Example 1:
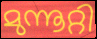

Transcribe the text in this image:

മുന്നൂറ്റി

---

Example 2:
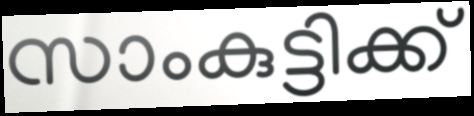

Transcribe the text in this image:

സാംകുട്ടിക്ക്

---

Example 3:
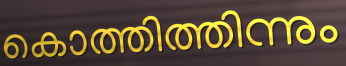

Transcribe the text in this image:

കൊത്തിത്തിന്നും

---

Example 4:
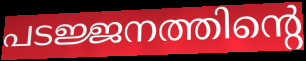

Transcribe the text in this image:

പടജ്ജനത്തിന്റെ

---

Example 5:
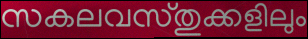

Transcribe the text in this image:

സകലവസ്തുക്കളിലും